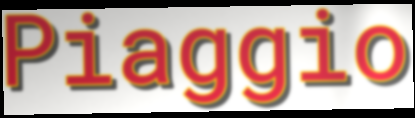
Piaggio